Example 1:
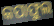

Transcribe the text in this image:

କପାଫୁଲ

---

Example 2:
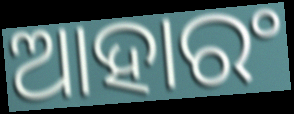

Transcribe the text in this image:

ଆହାରଂ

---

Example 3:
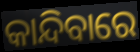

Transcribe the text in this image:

କାନ୍ଦିବାରେ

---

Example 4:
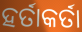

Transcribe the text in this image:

ହର୍ତାକର୍ତା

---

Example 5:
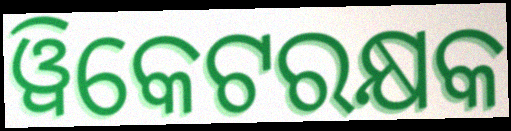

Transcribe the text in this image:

ୱିକେଟରକ୍ଷକ